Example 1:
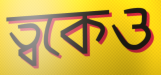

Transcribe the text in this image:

ত্বকেও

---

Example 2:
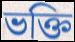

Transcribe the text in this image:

ভক্তি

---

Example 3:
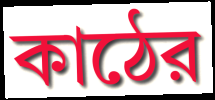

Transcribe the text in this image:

কাঠের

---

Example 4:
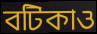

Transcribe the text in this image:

বটিকাও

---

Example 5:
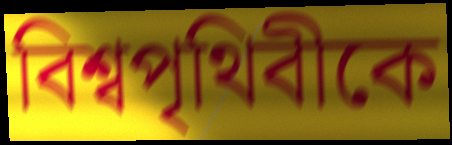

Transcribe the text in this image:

বিশ্বপৃথিবীকে